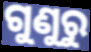
ଗୁଣୁରୁ